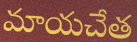
మాయచేత